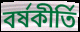
বর্ষকীর্তি